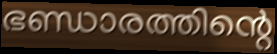
ഭണ്ഡാരത്തിന്റെ